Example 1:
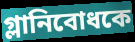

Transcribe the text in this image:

গ্লানিবোধকে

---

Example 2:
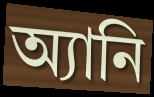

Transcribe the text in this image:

অ্যানি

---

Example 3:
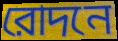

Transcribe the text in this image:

রোদনে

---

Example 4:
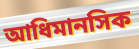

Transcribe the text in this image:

আধিমানসিক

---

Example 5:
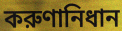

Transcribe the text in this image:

করুণানিধান